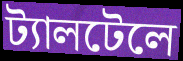
ট্যালটেলে